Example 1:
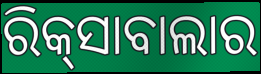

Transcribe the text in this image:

ରିକ୍‌ସାବାଲାର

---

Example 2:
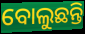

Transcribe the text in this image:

ବୋଲୁଛନ୍ତି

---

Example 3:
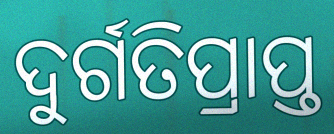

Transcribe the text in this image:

ଦୁର୍ଗତିପ୍ରାପ୍ତ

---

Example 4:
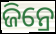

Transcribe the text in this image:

ଜିନ୍ରେ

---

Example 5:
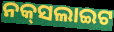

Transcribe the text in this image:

ନକ୍‌ସଲାଇଟ